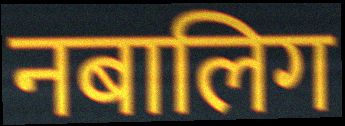
नबालिग